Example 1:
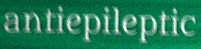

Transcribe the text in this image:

antiepileptic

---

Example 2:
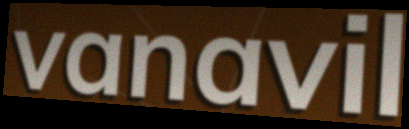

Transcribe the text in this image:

vanavil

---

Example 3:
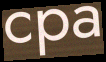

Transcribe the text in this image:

cpa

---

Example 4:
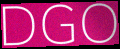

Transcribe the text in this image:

DGO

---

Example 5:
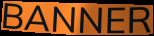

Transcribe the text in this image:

BANNER